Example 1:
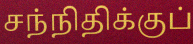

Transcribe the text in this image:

சந்நிதிக்குப்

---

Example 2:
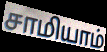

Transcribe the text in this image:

சாமியாம்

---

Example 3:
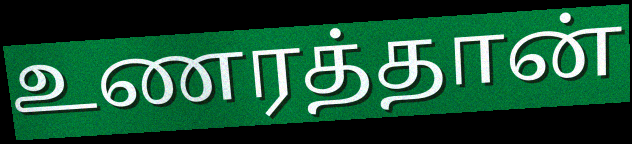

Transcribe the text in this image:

உணரத்தான்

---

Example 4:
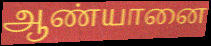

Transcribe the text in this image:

ஆண்யானை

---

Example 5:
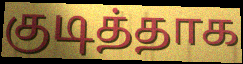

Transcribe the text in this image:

குடித்தாக